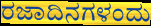
ರಜಾದಿನಗಳಂದು